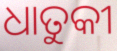
ଧାତୁକୀ